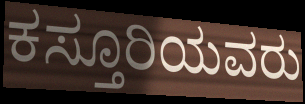
ಕಸ್ತೂರಿಯವರು